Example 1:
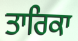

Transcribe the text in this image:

ਤਾਰਿਕਾ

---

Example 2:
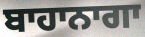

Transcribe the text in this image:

ਬਾਹਾਨਾਗਾ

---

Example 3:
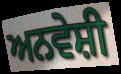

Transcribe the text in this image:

ਅਨਵੇਸ਼ੀ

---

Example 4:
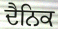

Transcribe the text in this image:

ਦੈਨਿਕ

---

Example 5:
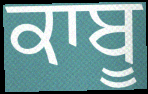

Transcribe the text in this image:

ਕਾਬੂ